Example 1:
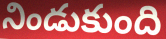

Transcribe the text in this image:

నిండుకుంది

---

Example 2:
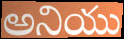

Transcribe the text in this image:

అనియు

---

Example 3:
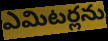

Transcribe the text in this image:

ఎమిటర్లను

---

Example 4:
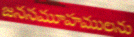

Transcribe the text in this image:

జనసమూహములను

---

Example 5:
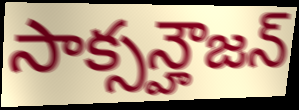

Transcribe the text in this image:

సాక్సన్హౌజన్